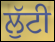
ਲੁੱਟੀ